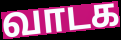
வாடக